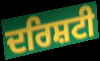
ਦਰਿਸ਼ਟੀ